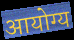
आयोग्य